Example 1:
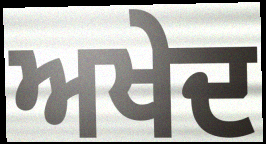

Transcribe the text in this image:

ਅਖੇਦ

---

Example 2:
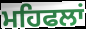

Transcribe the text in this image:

ਮਹਿਫਲਾਂ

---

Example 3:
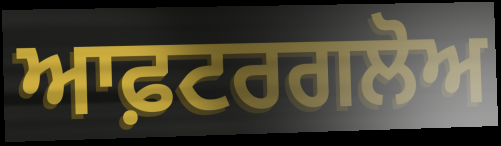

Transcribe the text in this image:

ਆਫ਼ਟਰਗਲੋਅ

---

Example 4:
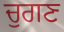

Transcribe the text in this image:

ਚੁਗਣ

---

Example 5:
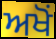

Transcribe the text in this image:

ਅਖੋਂ